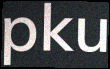
pku